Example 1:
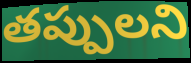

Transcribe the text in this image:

తప్పులని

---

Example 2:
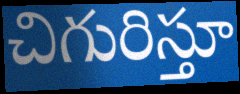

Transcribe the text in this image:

చిగురిస్తూ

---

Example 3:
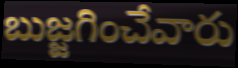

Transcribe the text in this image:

బుజ్జగించేవారు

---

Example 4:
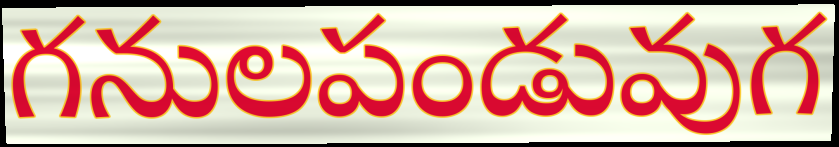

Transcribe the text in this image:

గనులపండువుగ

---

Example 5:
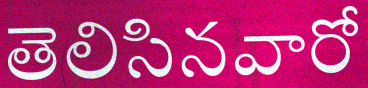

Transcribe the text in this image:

తెలిసినవారో